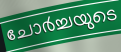
ചോർച്ചയുടെ